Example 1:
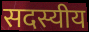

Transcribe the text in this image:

सदस्यीय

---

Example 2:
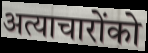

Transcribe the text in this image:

अत्याचारोंको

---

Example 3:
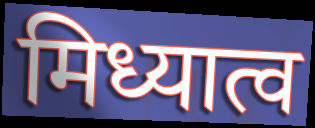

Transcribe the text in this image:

मिध्यात्व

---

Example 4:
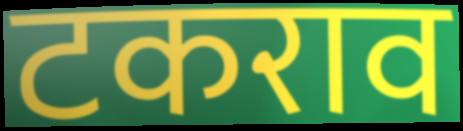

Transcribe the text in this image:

टकराव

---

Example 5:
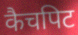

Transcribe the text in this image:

कैचपिट